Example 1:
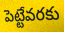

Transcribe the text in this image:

పెట్టేవరకు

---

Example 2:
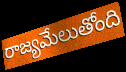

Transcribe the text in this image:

రాజ్యమేలుతోంది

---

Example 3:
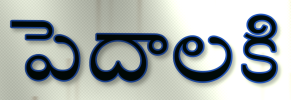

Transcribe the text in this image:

పెదాలకి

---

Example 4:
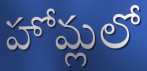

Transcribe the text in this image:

హోమ్లలో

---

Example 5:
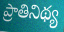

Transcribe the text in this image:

ప్రాతినిథ్య